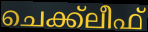
ചെക്ക്ലീഫ്